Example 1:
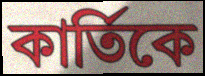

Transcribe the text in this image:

কাৰ্তিকে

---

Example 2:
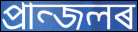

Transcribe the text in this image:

প্ৰান্জলৰ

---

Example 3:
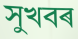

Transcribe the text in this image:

সুখবৰ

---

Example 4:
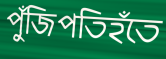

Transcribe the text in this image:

পুঁজিপতিহঁতে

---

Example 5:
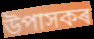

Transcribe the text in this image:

উপাসকৰ